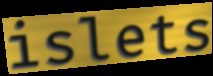
islets